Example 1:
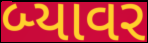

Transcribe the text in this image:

બ્યાવર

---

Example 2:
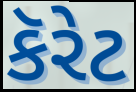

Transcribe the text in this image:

કૅરેટ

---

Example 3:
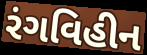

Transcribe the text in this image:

રંગવિહીન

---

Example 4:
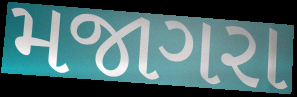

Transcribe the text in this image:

મજાગરા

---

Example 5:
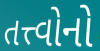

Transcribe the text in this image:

તત્ત્વોનો